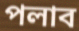
পলাব